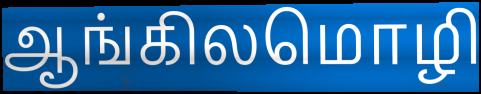
ஆங்கிலமொழி